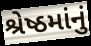
શ્રેષ્ઠમાંનું